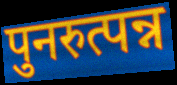
पुनरुत्पन्न